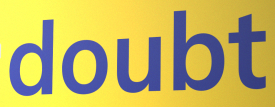
doubt